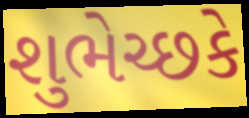
શુભેચ્છકે